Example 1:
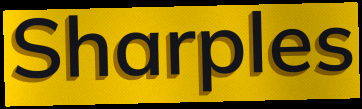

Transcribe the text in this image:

Sharples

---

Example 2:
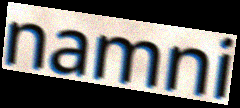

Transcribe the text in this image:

namni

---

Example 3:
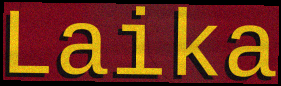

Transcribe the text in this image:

Laika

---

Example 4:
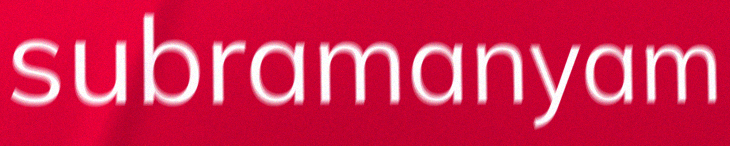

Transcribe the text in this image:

subramanyam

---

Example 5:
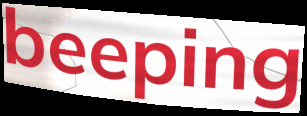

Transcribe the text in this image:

beeping